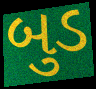
બુડ